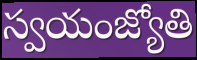
స్వయంజ్యోతి